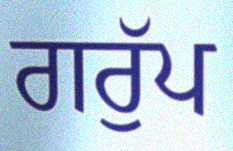
ਗਰੁੱਪ